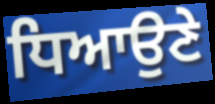
ਧਿਆਉਣੇ